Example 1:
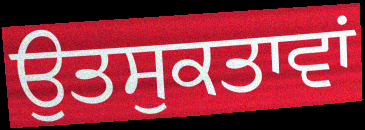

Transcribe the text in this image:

ਉਤਸੁਕਤਾਵਾਂ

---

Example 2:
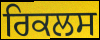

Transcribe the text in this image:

ਰਿਕਲਸ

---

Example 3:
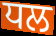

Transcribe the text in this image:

ਧਲ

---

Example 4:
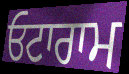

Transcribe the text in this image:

ਓਟਾਰਾਮ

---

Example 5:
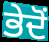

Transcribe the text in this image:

ਭੇਦੋਂ